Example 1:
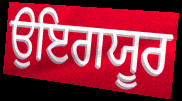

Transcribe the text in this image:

ਉਇਗਯੂਰ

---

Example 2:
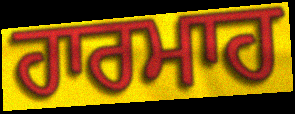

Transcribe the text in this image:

ਹਾਰਮਾਹ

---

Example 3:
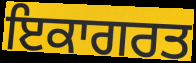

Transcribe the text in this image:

ਇਕਾਗਰਤ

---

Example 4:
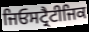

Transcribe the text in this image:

ਜਿਓਸਟ੍ਰੈਟੀਜਿਕ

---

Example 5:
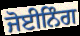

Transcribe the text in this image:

ਜੋਈਨਿੰਗ